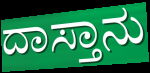
ದಾಸ್ತಾನು